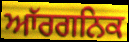
ਆੱਰਗਨਿਕ